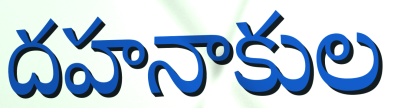
దహనాకుల